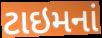
ટાઇમનાં